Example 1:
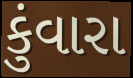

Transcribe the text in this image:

કુંવારા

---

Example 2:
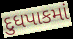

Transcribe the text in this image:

દુધપાકમાં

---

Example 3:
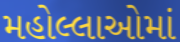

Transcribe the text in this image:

મહોલ્લાઓમાં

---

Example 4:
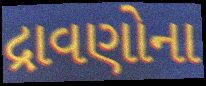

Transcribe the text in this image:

દ્રાવણોના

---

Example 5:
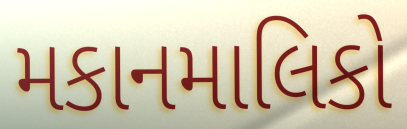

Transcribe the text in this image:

મકાનમાલિકો